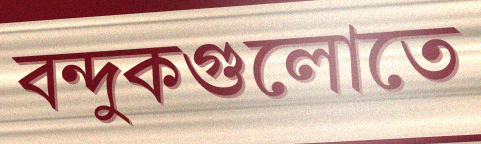
বন্দুকগুলোতে